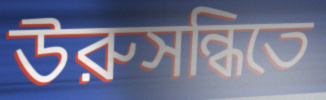
উরুসন্ধিতে